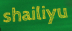
shailiyu